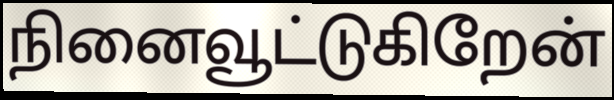
நினைவூட்டுகிறேன்